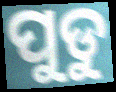
ପୁଡୁ